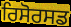
ਰਿਸੋਰਸਡ